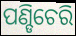
ପଣ୍ଡିଚେରି